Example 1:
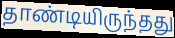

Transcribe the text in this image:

தாண்டியிருந்தது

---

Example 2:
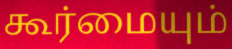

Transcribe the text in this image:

கூர்மையும்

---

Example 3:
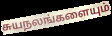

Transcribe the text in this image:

சுயநலங்களையும்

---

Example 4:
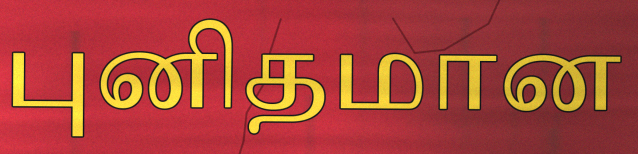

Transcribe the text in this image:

புனிதமான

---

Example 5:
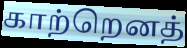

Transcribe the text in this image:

காற்றெனத்